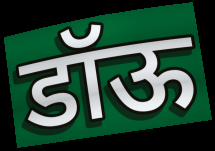
डॉऊ